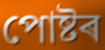
পোষ্টৰ